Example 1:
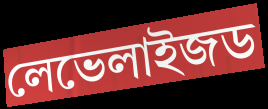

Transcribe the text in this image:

লেভেলাইজড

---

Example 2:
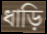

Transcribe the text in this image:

ধাড়ি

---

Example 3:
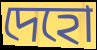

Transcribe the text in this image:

দেহো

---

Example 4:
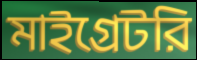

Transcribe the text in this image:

মাইগ্রেটরি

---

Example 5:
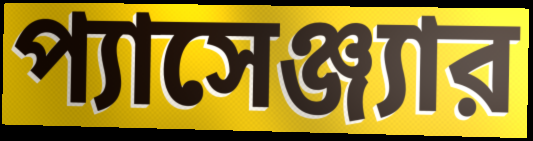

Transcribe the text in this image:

প্যাসেঞ্জ্যার